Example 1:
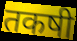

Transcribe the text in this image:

तकषी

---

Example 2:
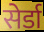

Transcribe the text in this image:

सेर्डा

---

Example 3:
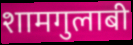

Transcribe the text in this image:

शामगुलाबी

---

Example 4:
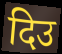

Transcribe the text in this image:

दिउ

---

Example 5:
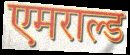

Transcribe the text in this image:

एमराल्ड